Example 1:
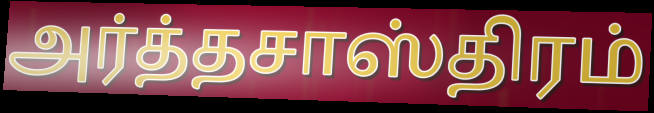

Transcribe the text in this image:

அர்த்தசாஸ்திரம்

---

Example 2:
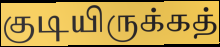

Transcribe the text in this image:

குடியிருக்கத்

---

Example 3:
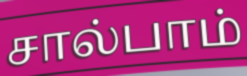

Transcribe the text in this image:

சால்பாம்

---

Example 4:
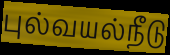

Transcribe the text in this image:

புல்வயல்நீடு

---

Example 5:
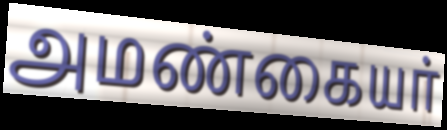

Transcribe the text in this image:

அமண்கையர்